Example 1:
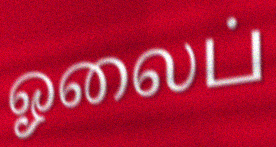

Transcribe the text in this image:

ஓலைப்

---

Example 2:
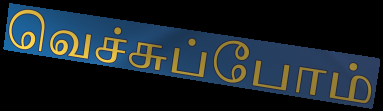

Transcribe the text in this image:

வெச்சுப்போம்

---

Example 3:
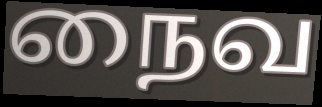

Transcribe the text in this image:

நைவ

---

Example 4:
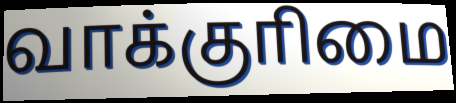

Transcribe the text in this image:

வாக்குரிமை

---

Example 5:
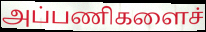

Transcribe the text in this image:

அப்பணிகளைச்